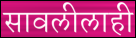
सावलीलाही